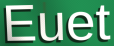
Euet